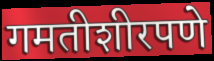
गमतीशीरपणे